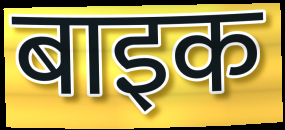
बाइक